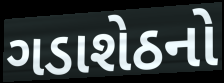
ગડાશેઠનો